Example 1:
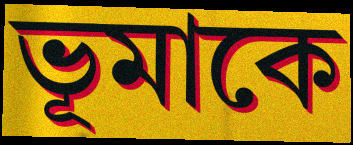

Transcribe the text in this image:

ভূমাকে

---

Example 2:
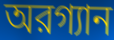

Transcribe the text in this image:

অরগ্যান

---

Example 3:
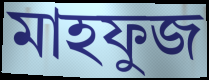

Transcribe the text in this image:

মাহফুজ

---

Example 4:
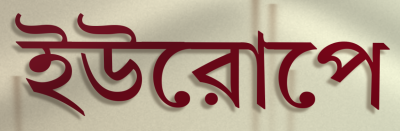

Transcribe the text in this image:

ইউরোপে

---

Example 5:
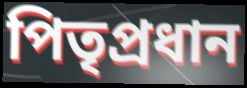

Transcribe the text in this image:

পিতৃপ্রধান